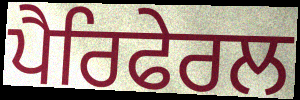
ਪੈਰਿਫੇਰਲ